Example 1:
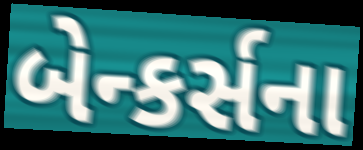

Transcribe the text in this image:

બેન્કર્સના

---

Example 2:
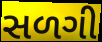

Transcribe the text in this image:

સળગી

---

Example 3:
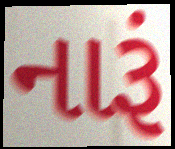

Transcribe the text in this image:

નારૂં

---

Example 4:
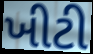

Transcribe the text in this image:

ખીટી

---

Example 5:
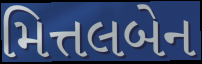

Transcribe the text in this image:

મિત્તલબેન